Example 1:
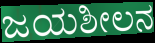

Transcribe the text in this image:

ಜಯಶೀಲನ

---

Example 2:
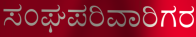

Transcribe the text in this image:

ಸಂಘಪರಿವಾರಿಗರ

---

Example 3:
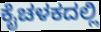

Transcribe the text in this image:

ಕೈಚಳಕದಲ್ಲಿ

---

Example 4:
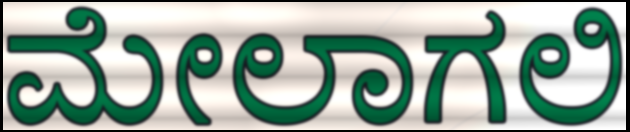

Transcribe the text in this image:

ಮೇಲಾಗಲಿ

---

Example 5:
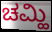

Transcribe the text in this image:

ಚಮ್ಹಿ